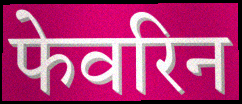
फेवरिन